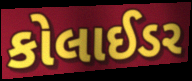
કોલાઈડર